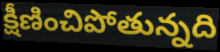
క్షీణించిపోతున్నది